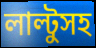
লাল্টুসহ